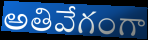
అతివేగంగా